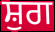
ਸ਼ੁਗ